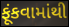
ફૂંકવામાંથી